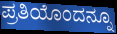
ಪ್ರತಿಯೊಂದನ್ನೂ